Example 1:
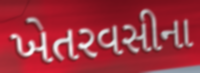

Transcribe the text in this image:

ખેતરવસીના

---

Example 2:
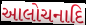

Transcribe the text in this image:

આલોચનાદિ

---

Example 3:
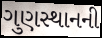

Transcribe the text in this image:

ગુણસ્થાનની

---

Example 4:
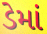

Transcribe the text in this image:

ડેમાં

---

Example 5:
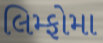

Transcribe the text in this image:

લિમ્ફોમા